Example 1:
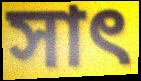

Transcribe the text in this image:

সাৎ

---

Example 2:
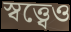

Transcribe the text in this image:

স্বত্ত্বেও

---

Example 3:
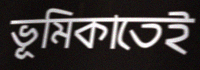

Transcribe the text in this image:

ভূমিকাতেই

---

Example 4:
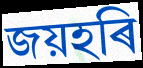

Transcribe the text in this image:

জয়হৰি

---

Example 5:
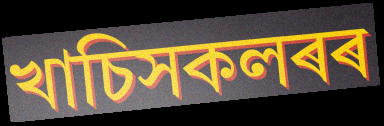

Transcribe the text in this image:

খাচিসকলৰৰ